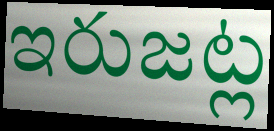
ఇరుజట్ల